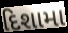
દિશામા